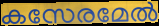
കസേരമേൽ